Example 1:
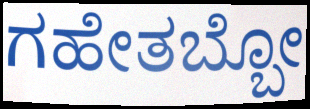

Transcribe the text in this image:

ಗಹೇತಬ್ಬೋ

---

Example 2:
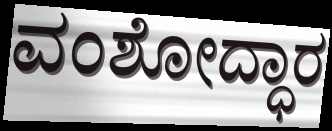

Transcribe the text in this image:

ವಂಶೋದ್ಧಾರ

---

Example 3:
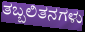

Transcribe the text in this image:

ತಬ್ಬಲಿತನಗಳು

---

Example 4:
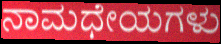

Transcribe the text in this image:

ನಾಮಧೇಯಗಳು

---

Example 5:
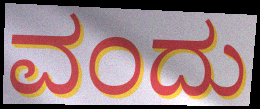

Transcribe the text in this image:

ವಂದು